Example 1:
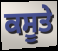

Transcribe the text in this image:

ਕਸੂਤੇ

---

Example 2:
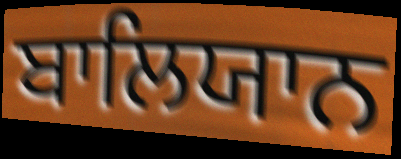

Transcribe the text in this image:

ਬਾਲਿਯਾਨ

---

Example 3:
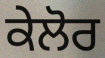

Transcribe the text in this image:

ਕੇਲੋਰ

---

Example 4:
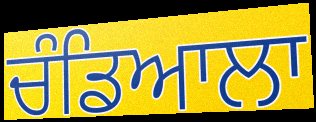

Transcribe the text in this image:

ਚੰਡਿਆਲਾ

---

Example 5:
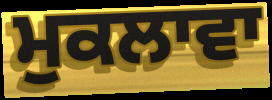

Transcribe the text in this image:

ਮੁਕਲਾਵਾ